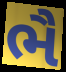
ભૈ